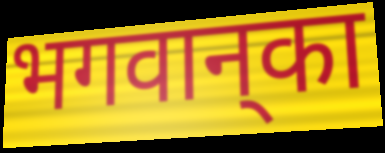
भगवान्‌का